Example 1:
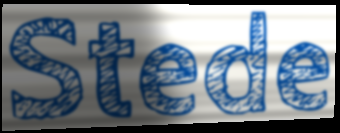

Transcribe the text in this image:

Stede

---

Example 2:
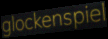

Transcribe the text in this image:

glockenspiel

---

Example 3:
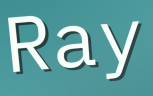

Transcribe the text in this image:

Ray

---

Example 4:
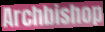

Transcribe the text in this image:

Archbishop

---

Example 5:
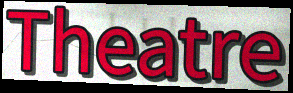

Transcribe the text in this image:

Theatre